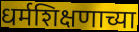
धर्मशिक्षणाच्या